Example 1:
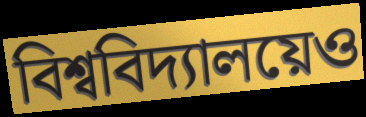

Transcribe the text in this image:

বিশ্ববিদ্যালয়েও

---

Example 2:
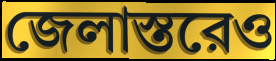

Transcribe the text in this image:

জেলাস্তরেও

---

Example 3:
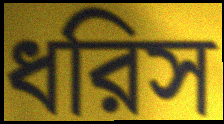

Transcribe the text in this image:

ধরিস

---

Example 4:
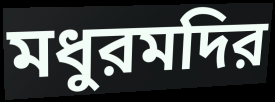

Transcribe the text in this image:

মধুরমদির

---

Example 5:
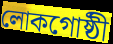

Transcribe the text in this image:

লোকগোষ্ঠী